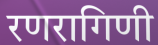
रणरागिणी